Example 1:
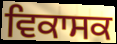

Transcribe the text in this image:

ਵਿਕਾਸਕ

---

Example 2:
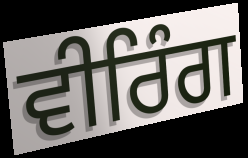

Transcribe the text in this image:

ਵੀਰਿੰਗ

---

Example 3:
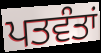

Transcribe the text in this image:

ਪਤਵੰਤਾਂ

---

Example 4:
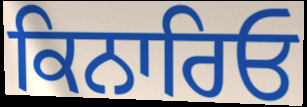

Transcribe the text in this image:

ਕਿਨਾਰਿਓ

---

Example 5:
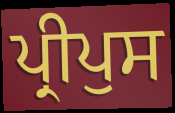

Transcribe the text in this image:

ਪ੍ਰੀਪੁਸ